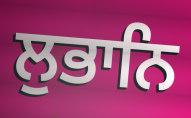
ਲੁਭਾਨਿ